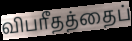
விபரீதத்தைப்